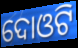
ଦୋଓଟି